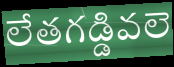
లేతగడ్డివలె